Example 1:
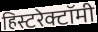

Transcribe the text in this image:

हिस्टरेक्टॉमी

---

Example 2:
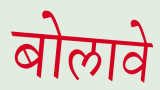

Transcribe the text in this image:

बोलावे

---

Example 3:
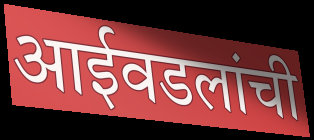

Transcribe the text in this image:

आईवडलांची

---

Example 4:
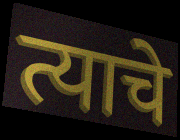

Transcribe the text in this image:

त्याचे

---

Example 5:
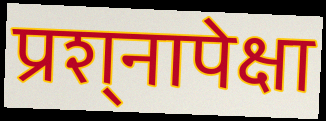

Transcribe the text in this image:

प्रश्नापेक्षा